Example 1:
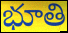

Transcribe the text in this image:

భూతి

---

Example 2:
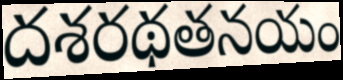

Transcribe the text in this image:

దశరథతనయం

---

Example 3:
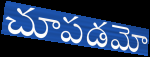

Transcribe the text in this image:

చూపడమో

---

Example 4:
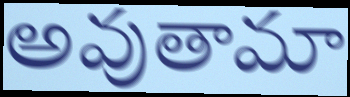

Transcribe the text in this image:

అవుతామా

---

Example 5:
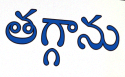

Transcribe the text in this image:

తగ్గాను